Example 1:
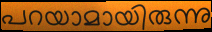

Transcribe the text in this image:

പറയാമായിരുന്നു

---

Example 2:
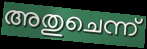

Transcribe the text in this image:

അതുചെന്ന്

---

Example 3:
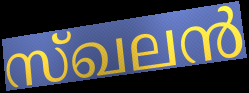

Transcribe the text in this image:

സ്ഖലൻ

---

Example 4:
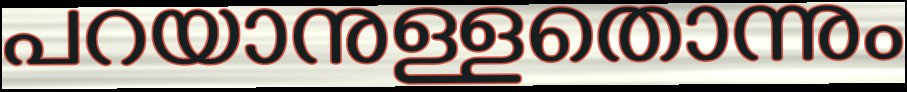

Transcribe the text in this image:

പറയാനുള്ളതൊന്നും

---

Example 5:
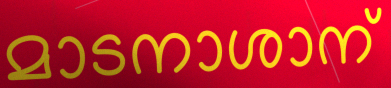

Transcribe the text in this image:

മാടനാശാന്